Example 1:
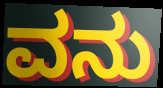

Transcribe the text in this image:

ವನು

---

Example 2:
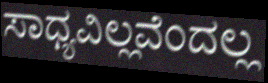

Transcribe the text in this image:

ಸಾಧ್ಯವಿಲ್ಲವೆಂದಲ್ಲ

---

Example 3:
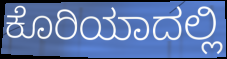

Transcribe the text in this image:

ಕೊರಿಯಾದಲ್ಲಿ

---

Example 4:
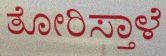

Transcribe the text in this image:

ತೋರಿಸ್ತಾಳೆ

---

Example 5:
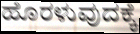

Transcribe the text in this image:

ಹೊರಳುವುದಕ್ಕೆ